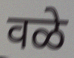
वळे